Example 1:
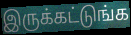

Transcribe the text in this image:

இருக்கட்டுங்க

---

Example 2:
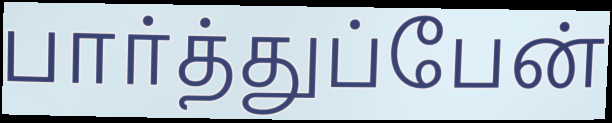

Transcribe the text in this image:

பார்த்துப்பேன்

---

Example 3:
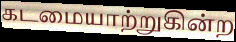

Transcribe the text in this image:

கடமையாற்றுகின்ற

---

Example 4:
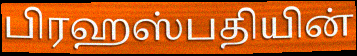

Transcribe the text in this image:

பிரஹஸ்பதியின்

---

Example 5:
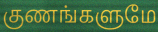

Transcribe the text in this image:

குணங்களுமே